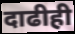
दाढीही